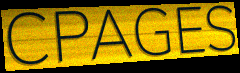
CPAGES